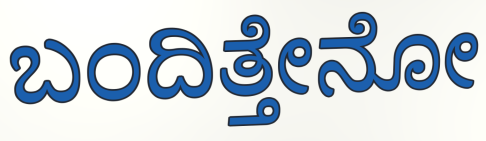
ಬಂದಿತ್ತೇನೋ